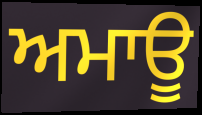
ਅਮਾਊ